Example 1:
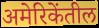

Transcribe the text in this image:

अमेरिकेंतील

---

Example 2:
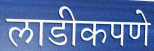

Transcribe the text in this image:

लाडीकपणे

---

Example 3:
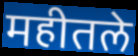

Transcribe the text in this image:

महीतले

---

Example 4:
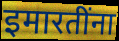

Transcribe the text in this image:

इमारतींना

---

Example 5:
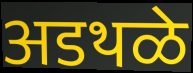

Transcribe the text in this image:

अडथळे